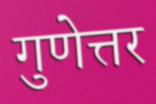
गुणेत्तर